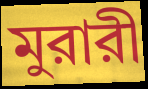
মুরারী